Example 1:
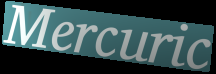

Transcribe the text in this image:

Mercuric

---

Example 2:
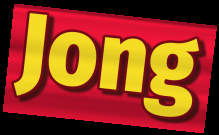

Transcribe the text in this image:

Jong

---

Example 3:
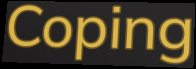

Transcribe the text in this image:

Coping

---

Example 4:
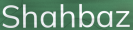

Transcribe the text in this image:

Shahbaz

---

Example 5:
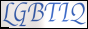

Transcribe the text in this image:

LGBTIQ